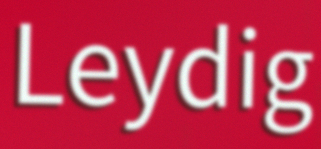
Leydig